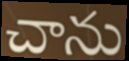
చాను